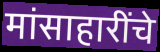
मांसाहारींचे